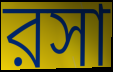
রসা